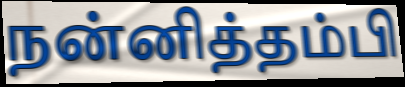
நன்னித்தம்பி